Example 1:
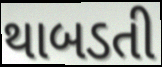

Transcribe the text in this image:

થાબડતી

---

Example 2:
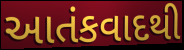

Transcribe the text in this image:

આતંકવાદથી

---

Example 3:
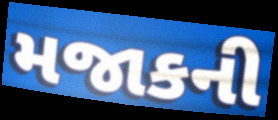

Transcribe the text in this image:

મજાકની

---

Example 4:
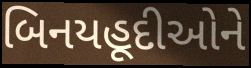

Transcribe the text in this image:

બિનયહૂદીઓને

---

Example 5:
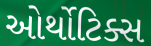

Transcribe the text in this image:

ઓર્થોટિક્સ